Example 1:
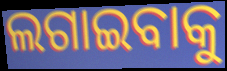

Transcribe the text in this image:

ଲଗାଇବାକୁ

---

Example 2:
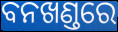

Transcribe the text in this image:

ବନଖଣ୍ଡରେ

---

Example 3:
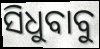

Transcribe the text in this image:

ସିଧୁବାବୁ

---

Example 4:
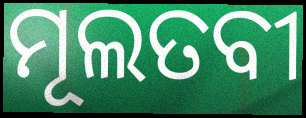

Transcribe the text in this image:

ମୂଲତବୀ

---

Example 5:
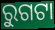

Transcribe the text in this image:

ରୁଗଟା